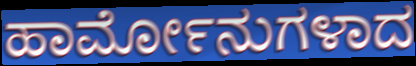
ಹಾರ್ಮೋನುಗಳಾದ